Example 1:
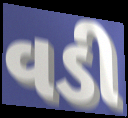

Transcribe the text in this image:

વડી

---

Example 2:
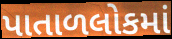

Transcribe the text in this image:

પાતાળલોકમાં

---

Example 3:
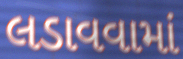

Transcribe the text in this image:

લડાવવામાં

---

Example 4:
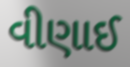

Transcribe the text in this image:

વીણાઈ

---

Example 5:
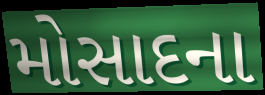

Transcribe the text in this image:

મોસાદના